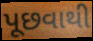
પૂછવાથી